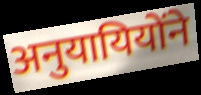
अनुयायियोंने